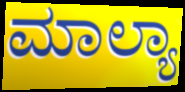
ಮಾಲ್ಯಾ